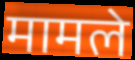
मामले